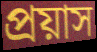
প্রয়াস